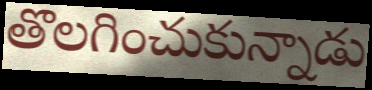
తొలగించుకున్నాడు